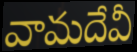
వామదేవీ